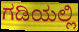
ಗಡಿಯಲ್ಲಿ